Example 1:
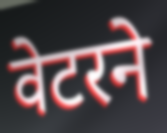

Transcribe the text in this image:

वेटरने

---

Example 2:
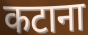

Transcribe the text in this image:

कटाना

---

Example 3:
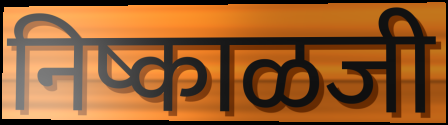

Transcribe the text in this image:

निष्काळजी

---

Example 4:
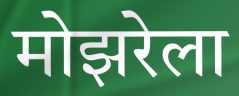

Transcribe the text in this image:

मोझरेला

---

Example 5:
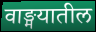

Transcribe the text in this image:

वाङ्मयातील